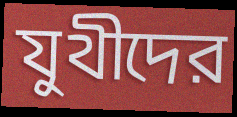
যুথীদের